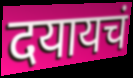
दयायचं